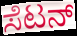
ಸೆಟನ್